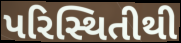
પરિસ્થિતીથી